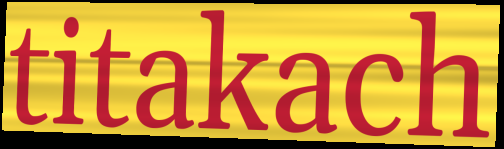
titakach